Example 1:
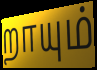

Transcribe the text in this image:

றாயும்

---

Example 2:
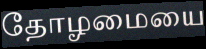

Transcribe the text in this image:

தோழமையை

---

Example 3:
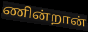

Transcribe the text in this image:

ணின்றான்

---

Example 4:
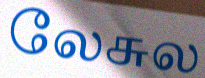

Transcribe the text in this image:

லேசுல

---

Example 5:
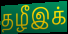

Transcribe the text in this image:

தழீஇக்